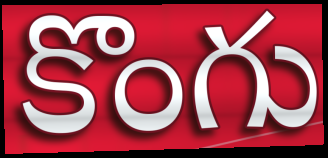
కొంగు